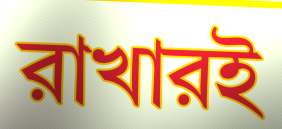
রাখারই